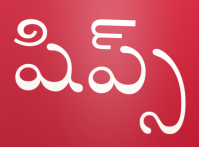
షిప్స్